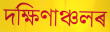
দক্ষিণাঞ্চলৰ